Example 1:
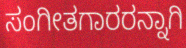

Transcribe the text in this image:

ಸಂಗೀತಗಾರರನ್ನಾಗಿ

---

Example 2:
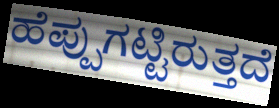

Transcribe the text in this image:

ಹೆಪ್ಪುಗಟ್ಟಿರುತ್ತದೆ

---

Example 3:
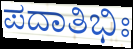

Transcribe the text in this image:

ಪದಾತಿಭಿಃ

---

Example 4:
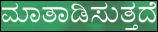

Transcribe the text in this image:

ಮಾತಾಡಿಸುತ್ತದೆ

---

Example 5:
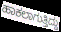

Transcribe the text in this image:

ಹಾಕಲಾಗುತ್ತಿದ್ದು